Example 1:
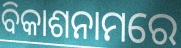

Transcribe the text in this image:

ବିକାଶନାମରେ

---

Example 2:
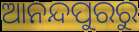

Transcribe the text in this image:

ଆନନ୍ଦପୁରରୁ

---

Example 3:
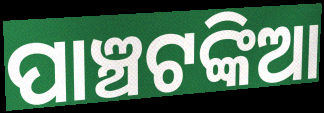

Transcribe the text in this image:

ପାଞ୍ଚଟଙ୍କିଆ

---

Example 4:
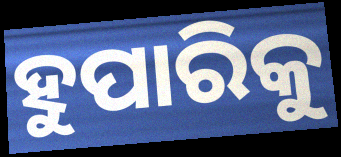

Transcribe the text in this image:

ହୁପାରିକୁ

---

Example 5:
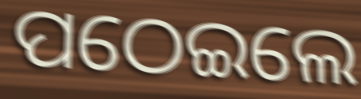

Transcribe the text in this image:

ପଠେଇଲେ